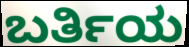
ಬರ್ತಿಯ